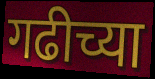
गढीच्या